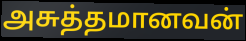
அசுத்தமானவன்